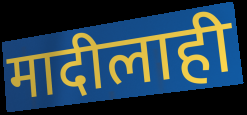
मादीलाही